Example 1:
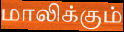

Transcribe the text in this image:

மாலிக்கும்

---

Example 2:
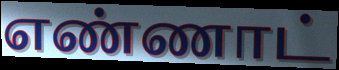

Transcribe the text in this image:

எண்ணாட்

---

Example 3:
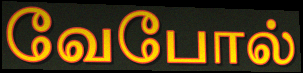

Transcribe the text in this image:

வேபோல்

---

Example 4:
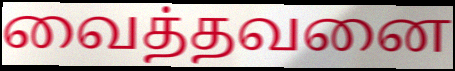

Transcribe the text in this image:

வைத்தவனை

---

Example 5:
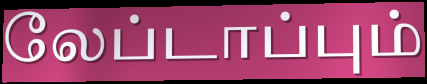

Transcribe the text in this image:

லேப்டாப்பும்